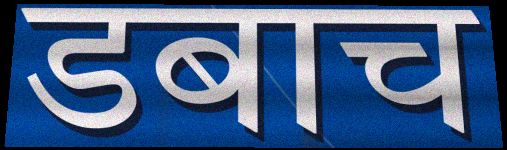
डबाच